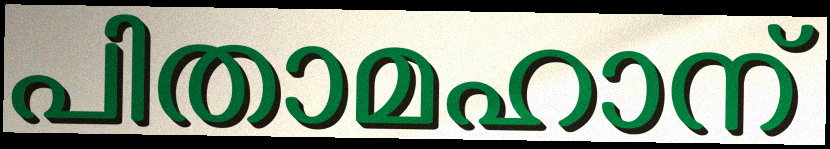
പിതാമഹാന്